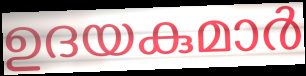
ഉദയകുമാർ